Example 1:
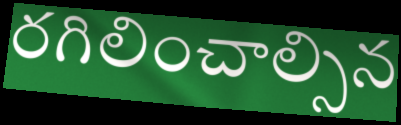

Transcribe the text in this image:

రగిలించాల్సిన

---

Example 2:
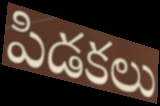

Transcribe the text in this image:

పిడకలు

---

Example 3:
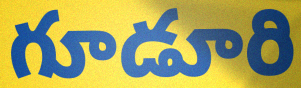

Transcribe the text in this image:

గూడూరి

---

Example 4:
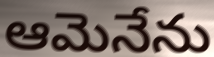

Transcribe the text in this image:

ఆమెనేను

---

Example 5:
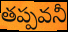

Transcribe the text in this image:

తప్పవనీ